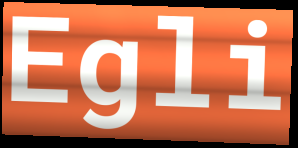
Egli